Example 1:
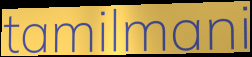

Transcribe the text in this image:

tamilmani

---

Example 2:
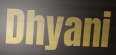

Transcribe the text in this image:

Dhyani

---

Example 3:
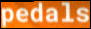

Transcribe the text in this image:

pedals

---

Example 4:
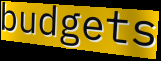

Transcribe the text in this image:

budgets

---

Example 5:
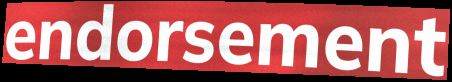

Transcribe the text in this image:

endorsement